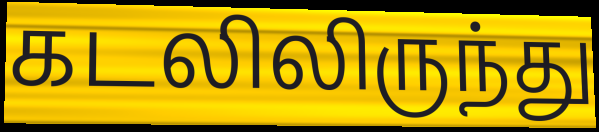
கடலிலிருந்து